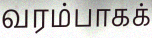
வரம்பாகக்